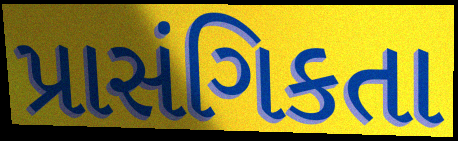
પ્રાસંગિકતા